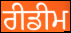
ਰੀਡੀਮ